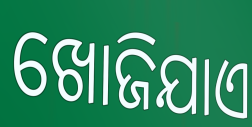
ଖୋଜିଯାଏ